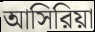
আসিরিয়া